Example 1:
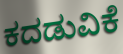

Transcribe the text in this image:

ಕದಡುವಿಕೆ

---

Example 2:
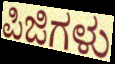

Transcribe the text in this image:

ಪಿಜಿಗಳು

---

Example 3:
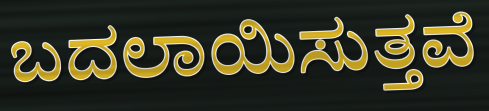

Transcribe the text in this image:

ಬದಲಾಯಿಸುತ್ತವೆ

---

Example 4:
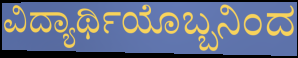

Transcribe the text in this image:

ವಿದ್ಯಾರ್ಥಿಯೊಬ್ಬನಿಂದ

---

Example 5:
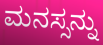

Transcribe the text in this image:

ಮನಸ್ಸನ್ನು